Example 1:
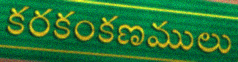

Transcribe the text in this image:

కరకంకణములు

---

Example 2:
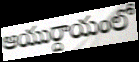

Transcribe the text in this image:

ఆయుర్దాయంలో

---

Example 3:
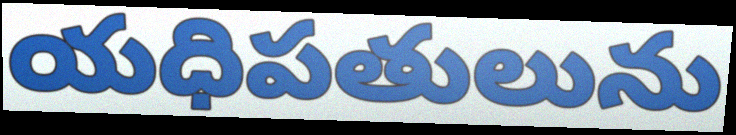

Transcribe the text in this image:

యధిపతులును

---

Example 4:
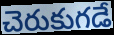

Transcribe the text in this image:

చెరుకుగడే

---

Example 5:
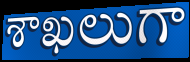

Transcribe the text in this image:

శాఖలుగా